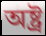
অষ্ট্ৰ